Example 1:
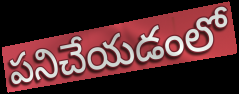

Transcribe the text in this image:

పనిచేయడంలో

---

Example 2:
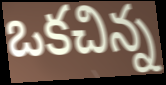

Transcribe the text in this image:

ఒకచిన్న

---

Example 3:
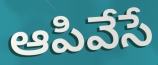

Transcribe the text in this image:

ఆపివేసే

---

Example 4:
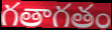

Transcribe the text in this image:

గతాగతం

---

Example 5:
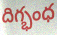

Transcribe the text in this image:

దిగ్భంధ